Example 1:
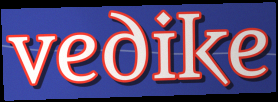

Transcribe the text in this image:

vedike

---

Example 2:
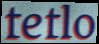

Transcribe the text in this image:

tetlo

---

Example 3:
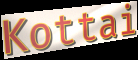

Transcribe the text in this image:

Kottai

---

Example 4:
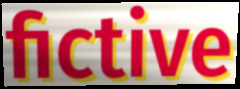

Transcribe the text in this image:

fictive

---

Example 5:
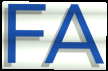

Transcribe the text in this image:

FA